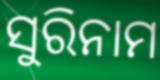
ସୁରିନାମ